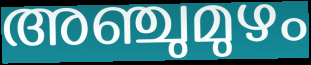
അഞ്ചുമുഴം